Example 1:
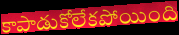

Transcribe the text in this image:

కాపాడుకోలేకపోయింది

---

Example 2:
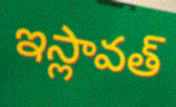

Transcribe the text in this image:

ఇస్లావత్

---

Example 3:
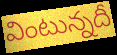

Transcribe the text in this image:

వింటున్నదీ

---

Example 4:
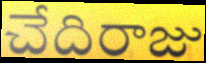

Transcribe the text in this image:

చేదిరాజు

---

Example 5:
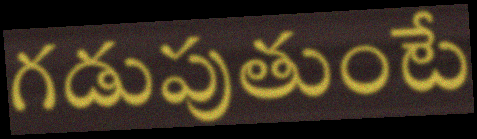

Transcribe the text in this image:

గడుపుతుంటే